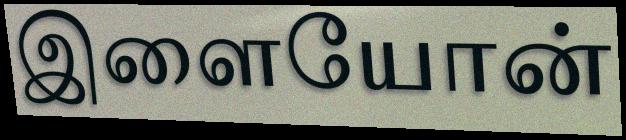
இளையோன்